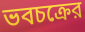
ভবচক্রের